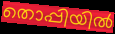
തൊപ്പിയിൽ